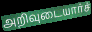
அறிவுடையார்ச்